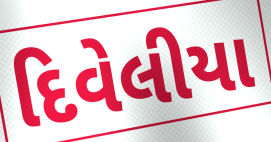
દિવેલીયા